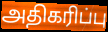
அதிகரிப்பு